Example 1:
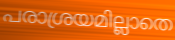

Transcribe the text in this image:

പരാശ്രയമില്ലാതെ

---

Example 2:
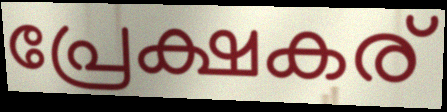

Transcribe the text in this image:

പ്രേക്ഷകര്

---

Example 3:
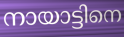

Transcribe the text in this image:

നായാട്ടിനെ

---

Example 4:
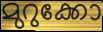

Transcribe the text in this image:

മുറുക്കോ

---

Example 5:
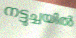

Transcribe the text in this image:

നട്ടുച്ചയിൽ